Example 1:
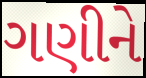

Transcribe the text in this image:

ગણીને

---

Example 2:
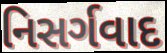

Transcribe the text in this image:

નિસર્ગવાદ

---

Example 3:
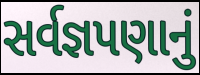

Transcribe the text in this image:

સર્વજ્ઞપણાનું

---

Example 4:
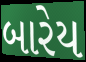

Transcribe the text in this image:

બારેય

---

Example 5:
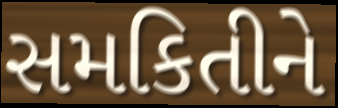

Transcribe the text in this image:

સમકિતીને